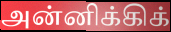
அன்னிக்கிக்